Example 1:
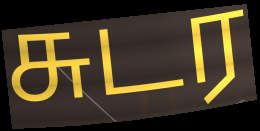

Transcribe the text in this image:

சுடர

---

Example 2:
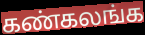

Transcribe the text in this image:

கண்கலங்க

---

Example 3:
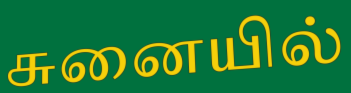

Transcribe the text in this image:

சுனையில்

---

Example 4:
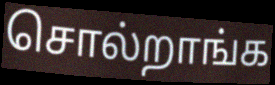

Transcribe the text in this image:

சொல்றாங்க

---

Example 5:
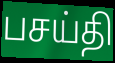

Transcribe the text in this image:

பசய்தி